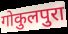
गोकुलपुरा